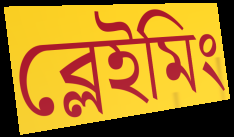
ব্লেইমিং